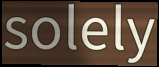
solely